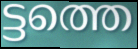
ട്ടത്തെ